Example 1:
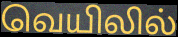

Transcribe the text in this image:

வெயிலில்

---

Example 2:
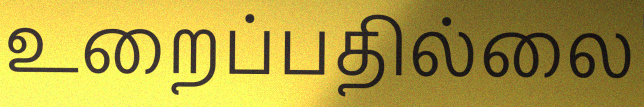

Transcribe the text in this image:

உறைப்பதில்லை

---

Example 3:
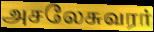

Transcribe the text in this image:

அசலேசுவரர்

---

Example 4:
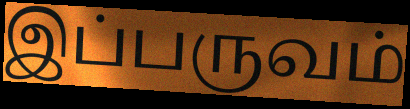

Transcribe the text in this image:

இப்பருவம்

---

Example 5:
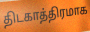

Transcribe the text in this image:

திடகாத்திரமாக